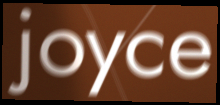
joyce